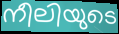
നീലിയുടെ